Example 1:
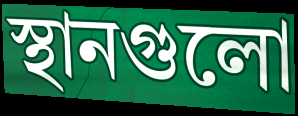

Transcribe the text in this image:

স্থানগুলো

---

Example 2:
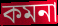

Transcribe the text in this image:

কমনা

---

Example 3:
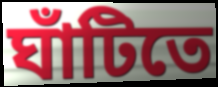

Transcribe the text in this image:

ঘাঁটিতে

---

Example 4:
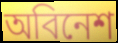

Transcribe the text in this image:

অবিনেশ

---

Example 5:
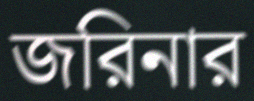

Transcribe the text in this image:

জরিনার